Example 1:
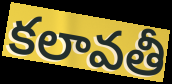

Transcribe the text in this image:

కలావతీ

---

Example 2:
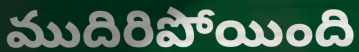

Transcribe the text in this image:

ముదిరిపోయింది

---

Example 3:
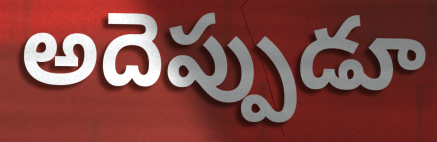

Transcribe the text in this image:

అదెప్పుడూ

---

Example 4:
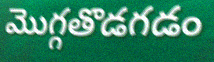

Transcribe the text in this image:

మొగ్గతొడగడం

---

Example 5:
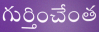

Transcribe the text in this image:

గుర్తించేంత